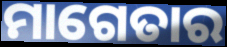
ମାଗେତାର